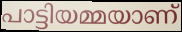
പാട്ടിയമ്മയാണ്